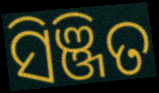
ସିଞ୍ଜିତ